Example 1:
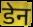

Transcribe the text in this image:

डेन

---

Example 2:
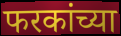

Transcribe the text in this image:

फरकांच्या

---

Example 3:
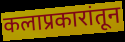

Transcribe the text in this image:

कलाप्रकारांतून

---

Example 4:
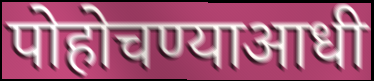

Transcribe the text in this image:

पोहोचण्याआधी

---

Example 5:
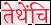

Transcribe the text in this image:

तेथेंचि